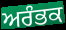
ਅਰੰਭਕ